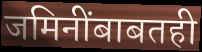
जमिनींबाबतही